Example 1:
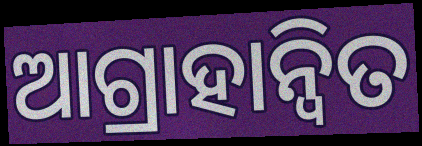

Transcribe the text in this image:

ଆଗ୍ରାହାନ୍ୱିତ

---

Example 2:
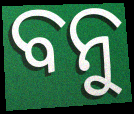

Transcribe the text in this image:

ବନୁ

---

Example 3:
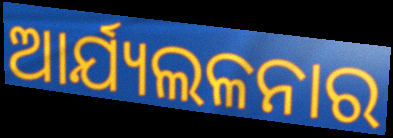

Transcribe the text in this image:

ଆର୍ଯ୍ୟଲଳନାର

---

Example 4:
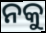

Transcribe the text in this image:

ନକୁ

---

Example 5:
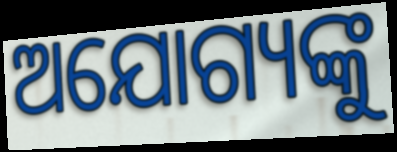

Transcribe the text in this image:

ଅଯୋଗ୍ୟଙ୍କୁ